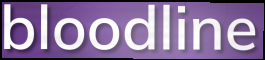
bloodline